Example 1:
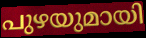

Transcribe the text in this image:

പുഴയുമായി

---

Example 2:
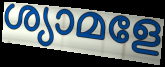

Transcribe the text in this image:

ശ്യാമളേ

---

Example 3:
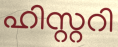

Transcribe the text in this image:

ഹിസ്റ്ററി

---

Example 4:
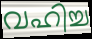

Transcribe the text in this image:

വഹിച്ച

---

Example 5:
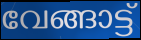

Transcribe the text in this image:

വേങ്ങാട്ട്